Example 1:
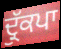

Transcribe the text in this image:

ਦ੍ਰੁੱਕਪਾ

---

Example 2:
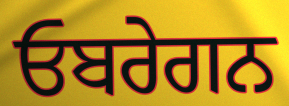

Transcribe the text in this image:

ਓਬਰੇਗਨ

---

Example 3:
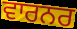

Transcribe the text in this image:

ਵਾਰਨਰ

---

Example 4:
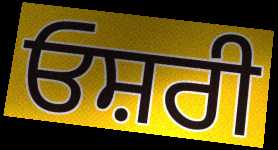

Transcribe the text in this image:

ਓਸ਼ਰੀ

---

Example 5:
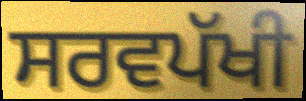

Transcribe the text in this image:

ਸਰਵਪੱਖੀ